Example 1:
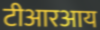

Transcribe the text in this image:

टीआरआय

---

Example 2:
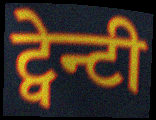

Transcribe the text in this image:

ट्वेन्टी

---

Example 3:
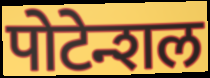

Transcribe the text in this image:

पोटेन्शल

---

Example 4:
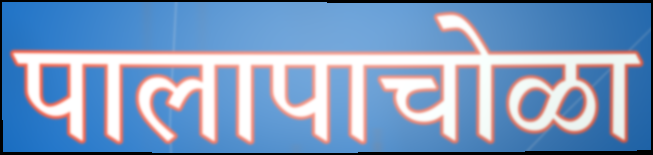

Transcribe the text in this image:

पालापाचोळा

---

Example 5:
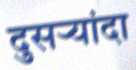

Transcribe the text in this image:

दुसऱ्यांदा